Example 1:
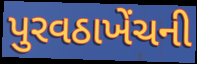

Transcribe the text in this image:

પુરવઠાખેંચની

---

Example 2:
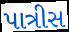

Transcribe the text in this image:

પાત્રીસ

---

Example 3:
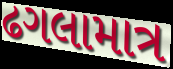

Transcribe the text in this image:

ઢગલામાત્ર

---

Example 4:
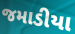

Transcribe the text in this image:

જમાડીયા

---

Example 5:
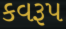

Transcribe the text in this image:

કવરૂપ